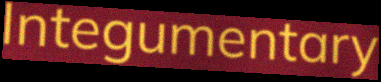
Integumentary